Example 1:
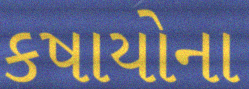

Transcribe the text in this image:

કષાયોના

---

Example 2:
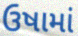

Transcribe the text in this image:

ઉષામાં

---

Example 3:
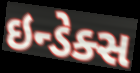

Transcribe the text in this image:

ઇન્ડેક્સ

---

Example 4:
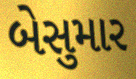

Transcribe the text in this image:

બેસુમાર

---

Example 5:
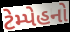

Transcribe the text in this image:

ટેમ્પેહનો